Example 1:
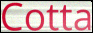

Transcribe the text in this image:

Cotta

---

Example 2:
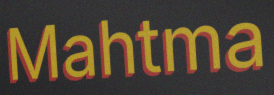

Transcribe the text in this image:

Mahtma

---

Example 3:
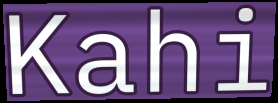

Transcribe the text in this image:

Kahi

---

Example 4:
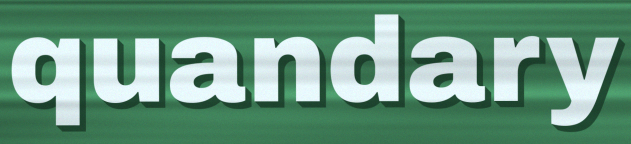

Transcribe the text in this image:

quandary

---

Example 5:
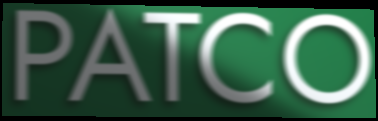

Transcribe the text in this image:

PATCO